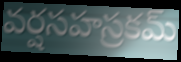
వర్షసహస్రకమ్